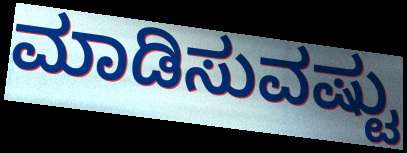
ಮಾಡಿಸುವಷ್ಟು